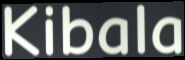
Kibala